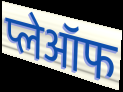
प्लेऑफ